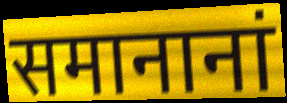
समानानां